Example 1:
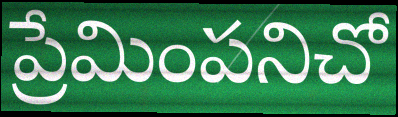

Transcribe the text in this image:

ప్రేమింపనిచో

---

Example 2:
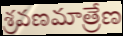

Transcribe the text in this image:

శ్రవణమాత్రేణ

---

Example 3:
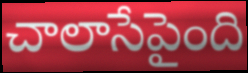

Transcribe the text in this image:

చాలాసేపైంది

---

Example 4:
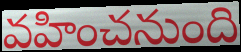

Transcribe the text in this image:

వహించనుంది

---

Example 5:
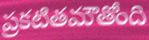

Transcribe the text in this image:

ప్రకటితమౌతోంది